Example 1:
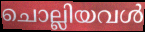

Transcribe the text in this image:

ചൊല്ലിയവൾ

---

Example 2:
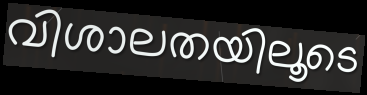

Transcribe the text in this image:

വിശാലതയിലൂടെ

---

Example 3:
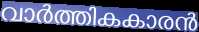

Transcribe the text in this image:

വാർത്തികകാരൻ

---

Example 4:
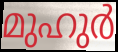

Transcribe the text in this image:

മുഹുർ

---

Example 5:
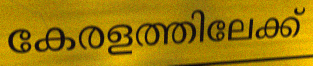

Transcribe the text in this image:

കേരളത്തിലേക്ക്